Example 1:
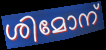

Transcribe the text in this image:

ശിമോന്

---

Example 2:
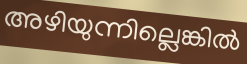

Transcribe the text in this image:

അഴിയുന്നില്ലെങ്കിൽ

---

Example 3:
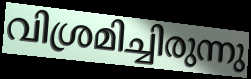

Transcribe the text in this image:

വിശ്രമിച്ചിരുന്നു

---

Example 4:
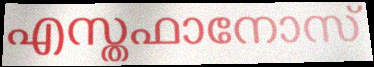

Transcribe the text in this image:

എസ്തഫാനോസ്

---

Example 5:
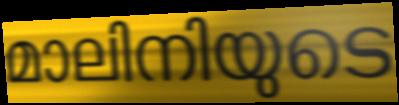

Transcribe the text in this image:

മാലിനിയുടെ